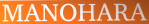
MANOHARA